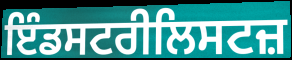
ਇੰਡਸਟਰੀਲਿਸਟਜ਼